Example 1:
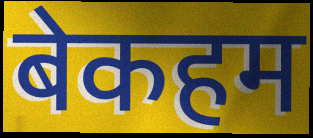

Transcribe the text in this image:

बेकहम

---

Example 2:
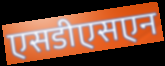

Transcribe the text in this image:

एसडीएसएन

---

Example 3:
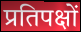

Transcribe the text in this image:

प्रतिपक्षों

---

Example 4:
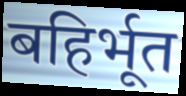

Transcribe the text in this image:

बहिर्भूत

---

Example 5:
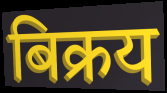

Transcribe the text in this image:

बिक्रय